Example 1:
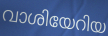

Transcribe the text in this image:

വാശിയേറിയ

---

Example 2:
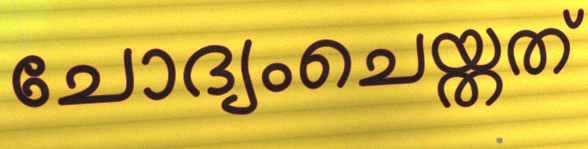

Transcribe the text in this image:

ചോദ്യംചെയ്തത്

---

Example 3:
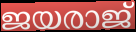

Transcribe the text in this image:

ജയരാജ്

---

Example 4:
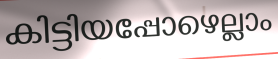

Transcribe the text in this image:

കിട്ടിയപ്പോഴെല്ലാം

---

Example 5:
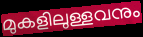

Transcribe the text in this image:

മുകളിലുള്ളവനും